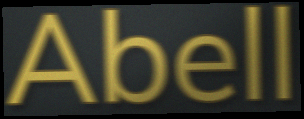
Abell